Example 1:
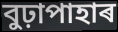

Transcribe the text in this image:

বুঢ়াপাহাৰ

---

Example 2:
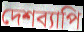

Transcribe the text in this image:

দেশব্যাপি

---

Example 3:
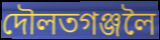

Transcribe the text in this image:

দৌলতগঞ্জলৈ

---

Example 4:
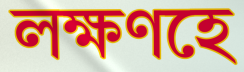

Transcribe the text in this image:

লক্ষণহে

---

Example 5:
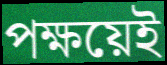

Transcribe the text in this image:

পক্ষয়েই